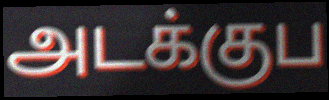
அடக்குப